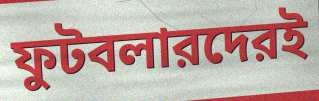
ফুটবলারদেরই